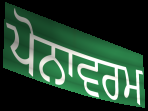
ਪੋਨਾਵਰਮ